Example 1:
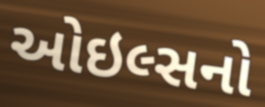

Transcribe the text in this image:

ઓઇલ્સનો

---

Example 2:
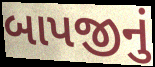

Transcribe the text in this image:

બાપજીનું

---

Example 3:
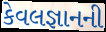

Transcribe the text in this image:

કેવલજ્ઞાનની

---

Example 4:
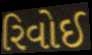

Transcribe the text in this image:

રિવોઈ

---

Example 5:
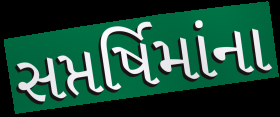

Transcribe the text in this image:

સપ્તર્ષિમાંના